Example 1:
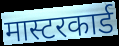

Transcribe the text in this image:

मास्टरकार्ड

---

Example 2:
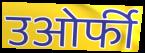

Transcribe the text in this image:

उओर्फी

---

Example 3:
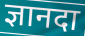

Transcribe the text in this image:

ज्ञानदा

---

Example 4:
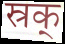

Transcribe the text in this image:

स्रक्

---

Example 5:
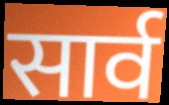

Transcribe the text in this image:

सार्व